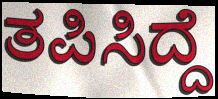
ತಪಿಸಿದ್ದೆ